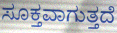
ಸೂಕ್ತವಾಗುತ್ತದೆ